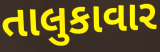
તાલુકાવાર